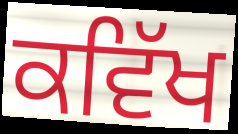
ਕਵਿੱਖ